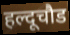
हल्दूचौड